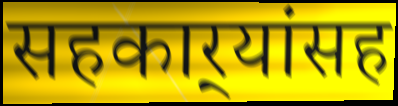
सहकार्यांसह